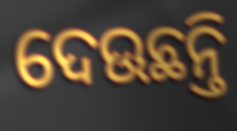
ଦେଊଛନ୍ତି